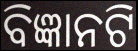
ବିଜ୍ଞାନଟି